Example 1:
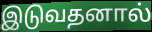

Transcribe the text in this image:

இடுவதனால்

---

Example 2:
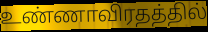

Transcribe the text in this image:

உண்ணாவிரதத்தில்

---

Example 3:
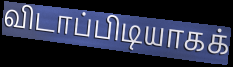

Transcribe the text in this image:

விடாப்பிடியாகக்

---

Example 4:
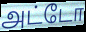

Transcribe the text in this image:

அட்டோ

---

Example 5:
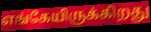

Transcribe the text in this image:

எங்கேயிருக்கிறது